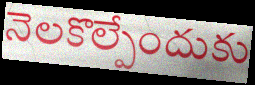
నెలకొల్పేందుకు